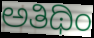
ಅತಿಥಿಂ